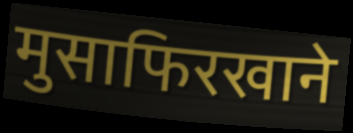
मुसाफिरखाने